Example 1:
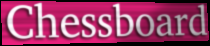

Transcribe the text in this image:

Chessboard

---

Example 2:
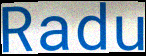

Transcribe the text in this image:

Radu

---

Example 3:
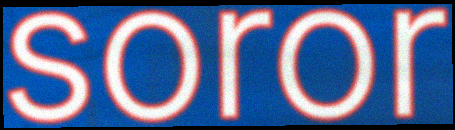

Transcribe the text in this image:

soror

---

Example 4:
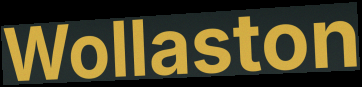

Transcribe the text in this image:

Wollaston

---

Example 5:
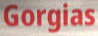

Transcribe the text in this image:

Gorgias